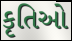
કૃતિઓ